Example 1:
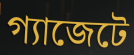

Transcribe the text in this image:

গ্যাজেটে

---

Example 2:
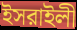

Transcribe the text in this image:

ইসরাইলী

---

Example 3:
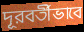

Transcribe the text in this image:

দূরবর্তীভাবে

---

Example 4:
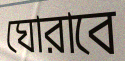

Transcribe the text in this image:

ঘোরাবে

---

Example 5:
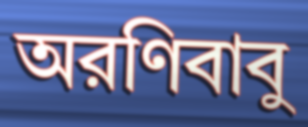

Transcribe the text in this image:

অরণিবাবু